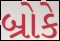
બ્રોકે